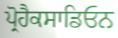
ਪ੍ਰੋਹੈਕਸਾਡਿਓਨ